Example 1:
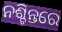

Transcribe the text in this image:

ନଶ୍ଚିନ୍ତରେ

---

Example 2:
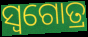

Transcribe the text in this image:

ସ୍ୱଗୋତ୍ର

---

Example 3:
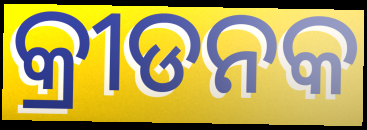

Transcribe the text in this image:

କ୍ରୀଡନକ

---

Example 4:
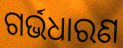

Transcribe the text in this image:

ଗର୍ଭଧାରଣ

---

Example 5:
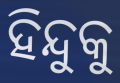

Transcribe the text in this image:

ହିନ୍ଦୁକୁ